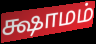
க்ஷாமம்